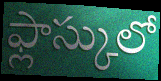
ఫ్లాస్కులో